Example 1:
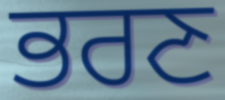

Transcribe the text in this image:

ਭਰਣ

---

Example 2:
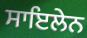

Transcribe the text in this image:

ਸਾਇਲੇਨ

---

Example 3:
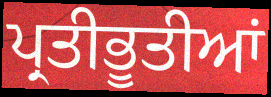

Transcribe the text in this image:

ਪ੍ਰਤੀਭੂਤੀਆਂ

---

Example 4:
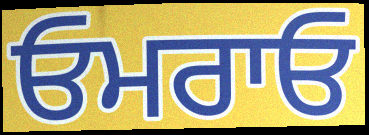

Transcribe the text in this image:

ਓਮਰਾਓ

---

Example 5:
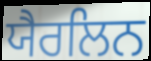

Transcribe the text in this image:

ਯੈਰਲਿਨ